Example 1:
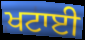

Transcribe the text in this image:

ਖਟਾਈ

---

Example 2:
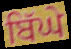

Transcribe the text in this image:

ਬਿੱਘੇ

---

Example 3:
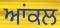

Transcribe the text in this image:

ਆਂਕਲ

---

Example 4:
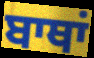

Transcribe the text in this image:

ਬਾਥਾਂ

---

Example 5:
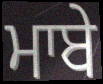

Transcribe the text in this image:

ਮਾਬੇ